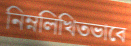
নিম্নলিখিতভাবে